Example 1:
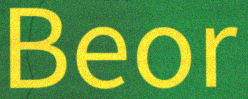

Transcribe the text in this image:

Beor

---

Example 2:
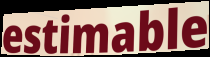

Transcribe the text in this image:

estimable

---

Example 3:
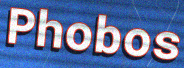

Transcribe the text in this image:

Phobos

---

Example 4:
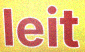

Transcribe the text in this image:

leit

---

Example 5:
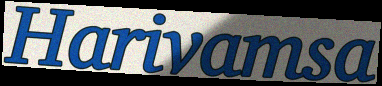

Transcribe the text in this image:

Harivamsa